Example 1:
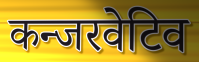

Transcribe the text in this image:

कन्जरवेटिव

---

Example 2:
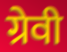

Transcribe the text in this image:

ग्रेवी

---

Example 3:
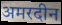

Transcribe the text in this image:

अमरदीन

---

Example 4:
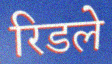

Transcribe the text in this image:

रिडले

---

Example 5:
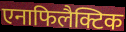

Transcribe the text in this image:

एनाफिलैक्टिक